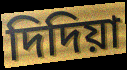
দিদিয়া